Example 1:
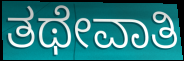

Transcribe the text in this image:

ತಥೇವಾತಿ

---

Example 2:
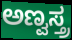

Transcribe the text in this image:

ಅಣ್ವಸ್ತ್ರ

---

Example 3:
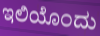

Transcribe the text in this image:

ಇಲಿಯೊಂದು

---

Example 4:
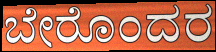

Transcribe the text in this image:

ಬೇರೊಂದರ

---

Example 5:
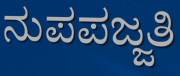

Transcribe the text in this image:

ನುಪಪಜ್ಜತಿ